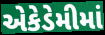
એકેડેમીમાં